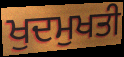
ਖੁਦਮੁਖਤੀ